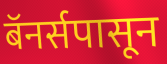
बॅनर्सपासून